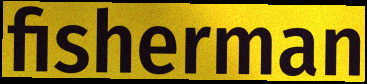
fisherman